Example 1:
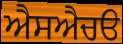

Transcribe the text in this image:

ਐਸਐਚੳ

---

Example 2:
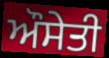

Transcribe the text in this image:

ਔਸੇਤੀ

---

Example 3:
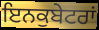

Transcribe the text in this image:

ਇਨਕੁਬੇਟਰਾਂ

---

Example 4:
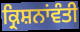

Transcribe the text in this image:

ਕ੍ਰਿਸ਼ਨਾਂਵੰਤੀ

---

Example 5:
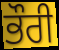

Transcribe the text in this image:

ਭੌਰੀ